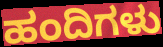
ಹಂದಿಗಳು